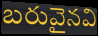
బరువైనవి